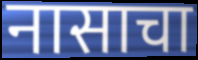
नासाचा